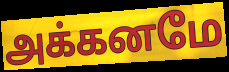
அக்கனமே